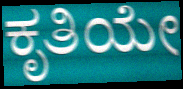
ಕೃತಿಯೇ